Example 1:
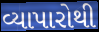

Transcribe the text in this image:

વ્યાપારોથી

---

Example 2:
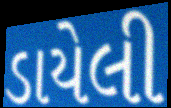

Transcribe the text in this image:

ડાયેલી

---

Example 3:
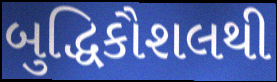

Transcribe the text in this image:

બુદ્ધિકૌશલથી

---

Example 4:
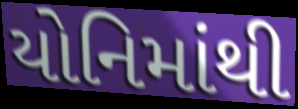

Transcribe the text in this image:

યોનિમાંથી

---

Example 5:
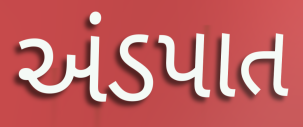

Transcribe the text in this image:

અંડપાત